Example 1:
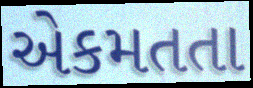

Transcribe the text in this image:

એકમતતા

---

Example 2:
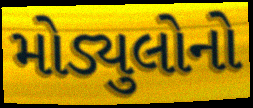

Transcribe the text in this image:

મોડ્યુલોનો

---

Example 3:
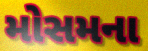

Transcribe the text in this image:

મોસમના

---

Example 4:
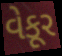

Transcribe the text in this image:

વેકૂર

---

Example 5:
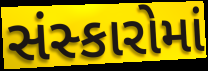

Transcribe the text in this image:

સંસ્કારોમાં